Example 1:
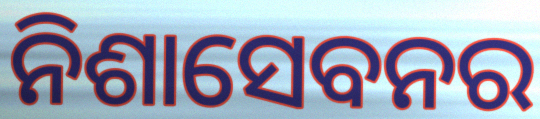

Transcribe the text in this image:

ନିଶାସେବନର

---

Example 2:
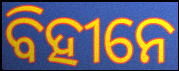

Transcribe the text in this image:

ବିହୀନେ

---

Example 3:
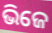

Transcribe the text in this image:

ଭିଜେ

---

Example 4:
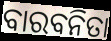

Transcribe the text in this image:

ବାରବନିତା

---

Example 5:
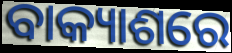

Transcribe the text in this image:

ବାକ୍ୟାଶରେ